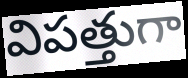
విపత్తుగా